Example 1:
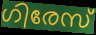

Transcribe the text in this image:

ഗിരേസ്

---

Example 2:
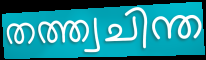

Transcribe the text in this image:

തത്ത്വചിന്ത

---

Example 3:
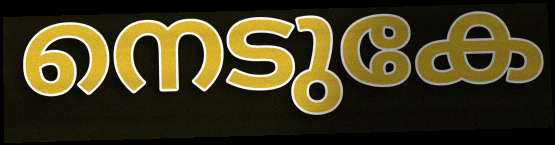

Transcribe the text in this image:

നെടുകേ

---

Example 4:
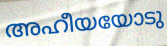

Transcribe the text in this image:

അഹീയയോടു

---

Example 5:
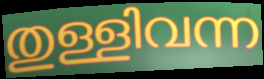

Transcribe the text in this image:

തുള്ളിവന്ന